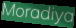
Moradiya